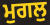
ਮੁਗਲੁ